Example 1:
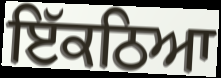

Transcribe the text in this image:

ਇੱਕਠਿਆ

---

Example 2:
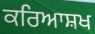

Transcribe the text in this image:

ਕਰਿਆਸ਼ਖ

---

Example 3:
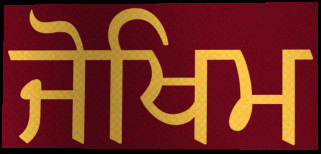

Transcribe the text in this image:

ਜੋਖਿਮ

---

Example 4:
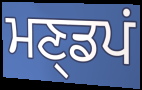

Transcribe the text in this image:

ਮਣ੍ਡਪਂ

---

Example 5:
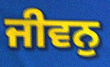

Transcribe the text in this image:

ਜੀਵਨੁ